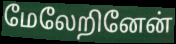
மேலேறினேன்